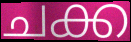
ചക്ക